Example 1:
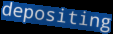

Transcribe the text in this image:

depositing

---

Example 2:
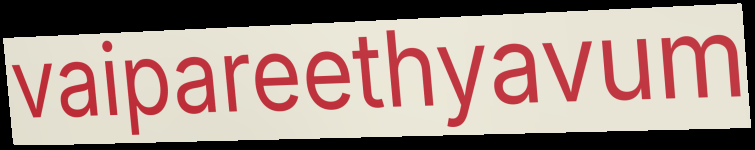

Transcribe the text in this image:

vaipareethyavum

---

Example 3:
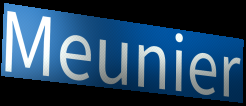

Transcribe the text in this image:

Meunier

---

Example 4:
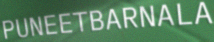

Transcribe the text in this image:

PUNEETBARNALA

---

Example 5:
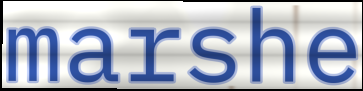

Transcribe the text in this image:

marshe